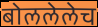
बोललेलेच